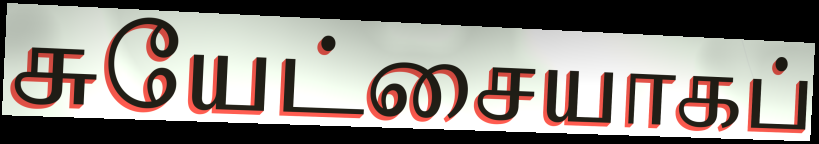
சுயேட்சையாகப்